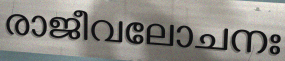
രാജീവലോചനഃ